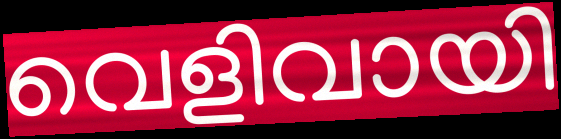
വെളിവായി